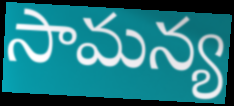
సామన్య